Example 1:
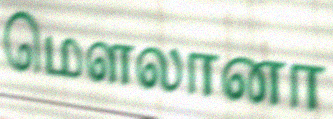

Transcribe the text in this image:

மௌலானா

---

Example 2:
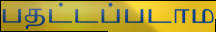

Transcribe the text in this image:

பதட்டப்படாம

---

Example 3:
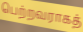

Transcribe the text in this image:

பெற்றவராகத்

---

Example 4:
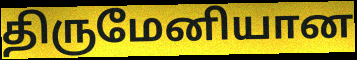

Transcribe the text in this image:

திருமேனியான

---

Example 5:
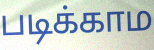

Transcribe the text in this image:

படிக்காம